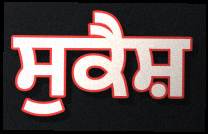
ਸੁਕੈਸ਼